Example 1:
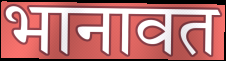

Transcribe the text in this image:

भानावत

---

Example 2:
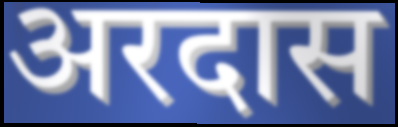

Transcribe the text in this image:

अरदास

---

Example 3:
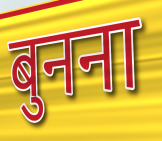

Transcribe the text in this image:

बुनना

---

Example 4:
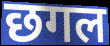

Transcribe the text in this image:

छगल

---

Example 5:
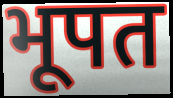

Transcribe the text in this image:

भूपत